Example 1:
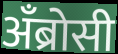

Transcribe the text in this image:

अँब्रोसी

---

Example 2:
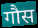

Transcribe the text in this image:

गौस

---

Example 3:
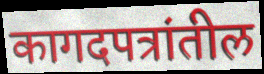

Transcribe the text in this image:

कागदपत्रांतील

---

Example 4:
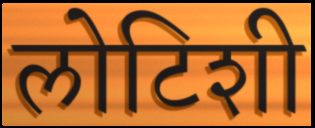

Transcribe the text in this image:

लोटिशी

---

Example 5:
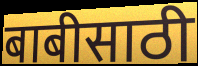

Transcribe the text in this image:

बाबीसाठी